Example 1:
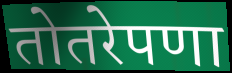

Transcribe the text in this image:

तोतरेपणा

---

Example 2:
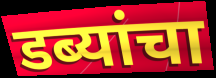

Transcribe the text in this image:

डब्यांचा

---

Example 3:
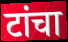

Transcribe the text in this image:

टांचा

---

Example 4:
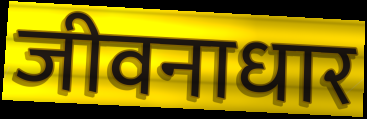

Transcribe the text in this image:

जीवनाधार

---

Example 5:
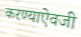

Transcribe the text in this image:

करण्याऐवजी